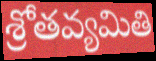
శ్రోతవ్యమితి